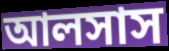
আলসাস